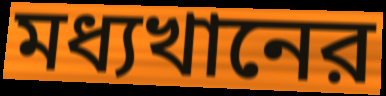
মধ্যখানের